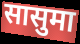
सासुमा